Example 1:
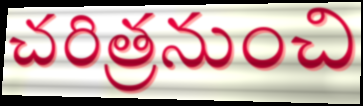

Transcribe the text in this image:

చరిత్రనుంచి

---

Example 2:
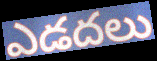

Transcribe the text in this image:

ఎడదలు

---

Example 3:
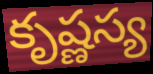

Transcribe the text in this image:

కృష్ణస్య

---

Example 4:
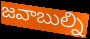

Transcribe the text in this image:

జవాబుల్ని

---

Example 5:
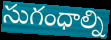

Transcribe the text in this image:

సుగంధాల్ని